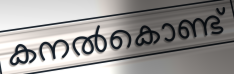
കനൽകൊണ്ട്